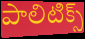
పాలిటిక్స్